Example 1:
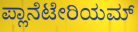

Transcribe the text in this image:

ಪ್ಲಾನೆಟೇರಿಯಮ್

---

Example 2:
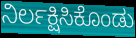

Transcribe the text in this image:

ನಿರ್ಲಕ್ಷಿಸಿಕೊಂಡು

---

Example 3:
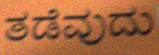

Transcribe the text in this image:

ತಡೆವುದು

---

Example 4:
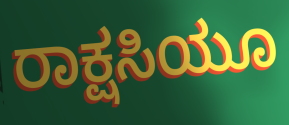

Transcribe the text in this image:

ರಾಕ್ಷಸಿಯೂ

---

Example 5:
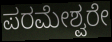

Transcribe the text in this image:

ಪರಮೇಶ್ವರೇ